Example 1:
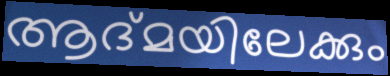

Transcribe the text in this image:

ആദ്മയിലേക്കും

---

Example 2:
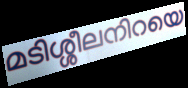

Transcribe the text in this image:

മടിശ്ശീലനിറയെ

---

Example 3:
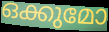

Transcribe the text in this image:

ഒക്കുമോ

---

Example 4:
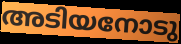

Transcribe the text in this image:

അടിയനോടു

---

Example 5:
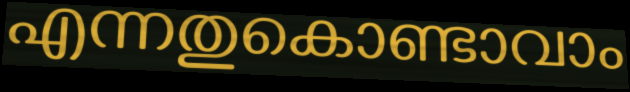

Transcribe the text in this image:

എന്നതുകൊണ്ടാവാം